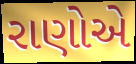
રાણોએ